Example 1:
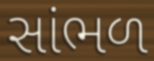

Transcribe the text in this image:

સાંભળ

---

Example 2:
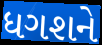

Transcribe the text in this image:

ધગશને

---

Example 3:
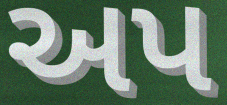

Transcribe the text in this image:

અપ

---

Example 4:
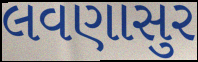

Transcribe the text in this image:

લવણાસુર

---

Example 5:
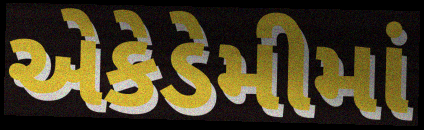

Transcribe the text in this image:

એકેડેમીમાં